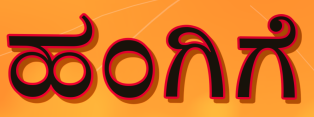
ಹಂಗಿಗೆ